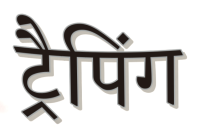
ट्रैपिंग